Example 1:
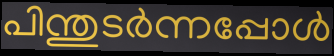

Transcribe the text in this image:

പിന്തുടർന്നപ്പോൾ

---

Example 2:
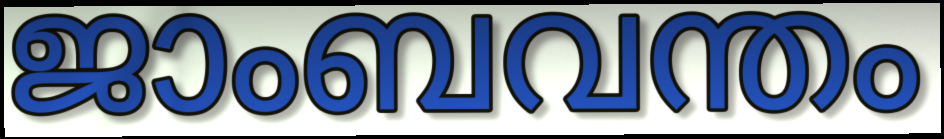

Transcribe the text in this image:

ജാംബവന്തം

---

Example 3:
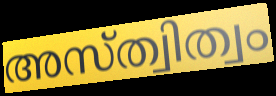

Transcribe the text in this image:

അസ്ത്വിത്വം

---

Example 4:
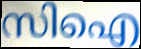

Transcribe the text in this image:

സിഐ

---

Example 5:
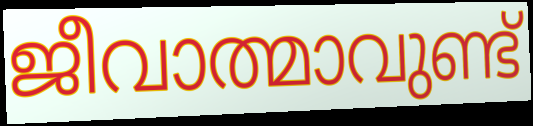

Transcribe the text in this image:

ജീവാത്മാവുണ്ട്